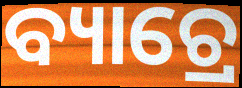
ବ୍ୟାଚ୍ରେ